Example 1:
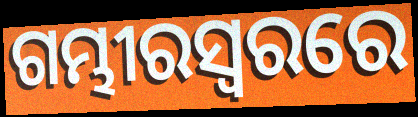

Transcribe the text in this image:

ଗମ୍ଭୀରସ୍ୱରରେ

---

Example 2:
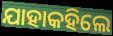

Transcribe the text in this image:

ଯାହାକହିଲେ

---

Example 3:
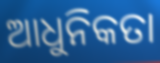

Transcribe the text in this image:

ଆଧୁନିକତା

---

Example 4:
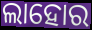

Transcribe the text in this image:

ଲାହୋର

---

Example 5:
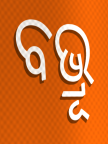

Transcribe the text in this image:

ବଭ୍ରୂ